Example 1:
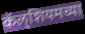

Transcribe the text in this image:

कॅल्शियमच्या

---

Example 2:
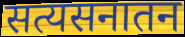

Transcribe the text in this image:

सत्यसनातन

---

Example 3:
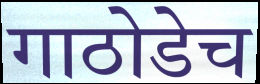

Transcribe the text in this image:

गाठोडेच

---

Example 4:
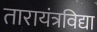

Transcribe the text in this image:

तारायंत्रविद्या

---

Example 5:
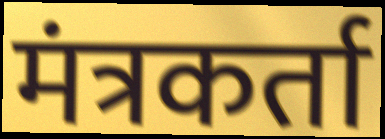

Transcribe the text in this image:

मंत्रकर्ता